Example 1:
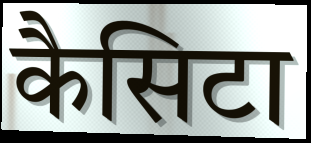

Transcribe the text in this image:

कैसिटा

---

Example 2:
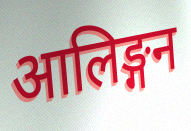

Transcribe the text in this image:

आलिङ्गन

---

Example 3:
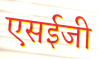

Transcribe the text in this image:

एसईजी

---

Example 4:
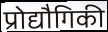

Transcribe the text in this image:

प्रोद्यौगिकी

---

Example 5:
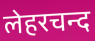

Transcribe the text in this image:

लेहरचन्द